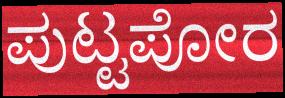
ಪುಟ್ಟಪೋರ